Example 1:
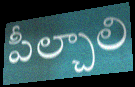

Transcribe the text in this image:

పీల్చాలి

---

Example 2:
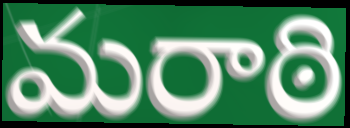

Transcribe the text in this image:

మరాఠి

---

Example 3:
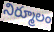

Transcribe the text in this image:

నిర్మూలం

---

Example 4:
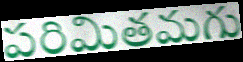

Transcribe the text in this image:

పరిమితమగు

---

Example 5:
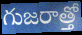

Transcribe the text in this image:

గుజరాత్తో